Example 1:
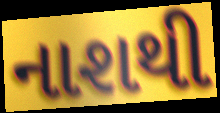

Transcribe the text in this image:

નાશથી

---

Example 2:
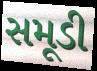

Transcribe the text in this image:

સમૂડી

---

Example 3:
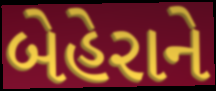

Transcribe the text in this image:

બેહેરાને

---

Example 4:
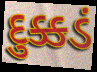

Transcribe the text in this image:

દુક્કડં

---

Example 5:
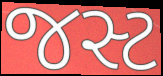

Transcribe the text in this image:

જસ્ટ